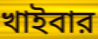
খাইবার